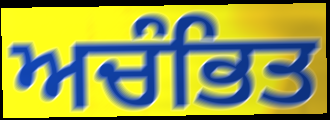
ਅਚੰਭਿਤ